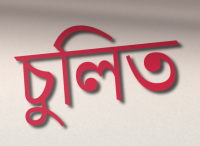
চুলিত